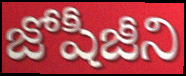
జోషీజీని